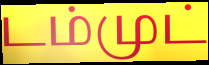
டம்முட்